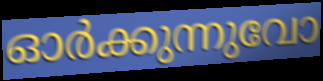
ഓർക്കുന്നുവോ